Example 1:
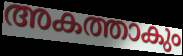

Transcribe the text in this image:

അകത്താകും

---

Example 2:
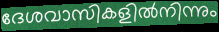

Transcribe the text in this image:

ദേശവാസികളിൽനിന്നും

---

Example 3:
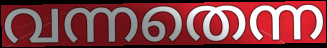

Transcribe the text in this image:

വന്നതെന്ന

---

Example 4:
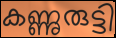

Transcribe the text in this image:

കണ്ണുരുട്ടി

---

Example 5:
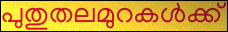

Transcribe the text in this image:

പുതുതലമുറകൾക്ക്